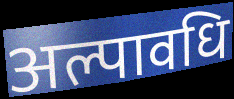
अल्पावधि